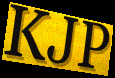
KJP